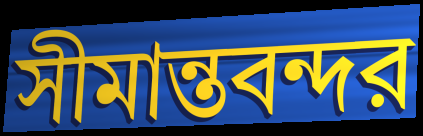
সীমান্তবন্দর